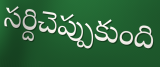
సర్దిచెప్పుకుంది